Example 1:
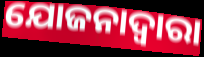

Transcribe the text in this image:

ଯୋଜନାଦ୍ବାରା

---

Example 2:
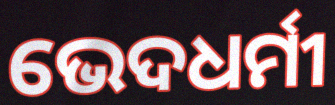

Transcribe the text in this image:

ଭେଦଧର୍ମୀ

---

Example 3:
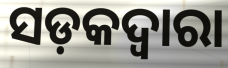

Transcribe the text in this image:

ସଡ଼କଦ୍ୱାରା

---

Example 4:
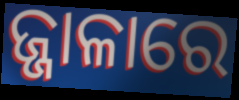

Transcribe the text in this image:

ଜ୍ଜାଳାରେ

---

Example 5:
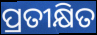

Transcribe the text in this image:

ପ୍ରତୀକ୍ଷିତ